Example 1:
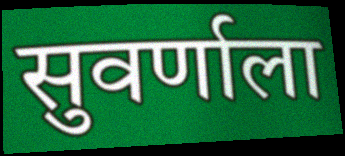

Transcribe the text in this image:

सुवर्णाला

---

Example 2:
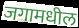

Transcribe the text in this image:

जगामधील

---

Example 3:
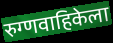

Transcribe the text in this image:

रुग्णवाहिकेला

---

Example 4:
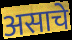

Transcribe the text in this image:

असाचे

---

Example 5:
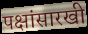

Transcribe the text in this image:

पक्षांसारखी